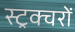
स्ट्रक्चरों